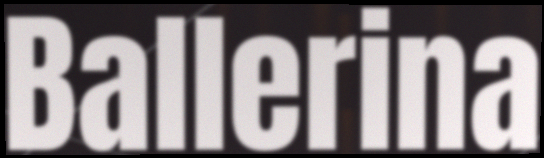
Ballerina